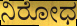
ನಿರೋಧ